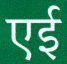
एई